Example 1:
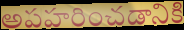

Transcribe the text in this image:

అపహరించడానికి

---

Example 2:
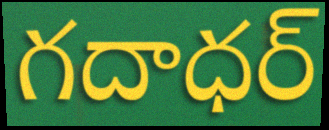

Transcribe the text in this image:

గదాధర్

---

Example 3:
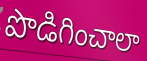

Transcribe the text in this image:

పొడిగించాలా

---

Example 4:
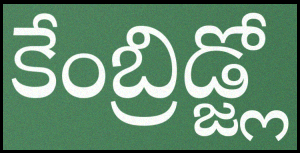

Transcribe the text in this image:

కేంబ్రిడ్జ్లో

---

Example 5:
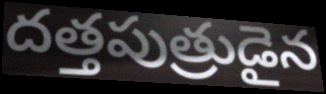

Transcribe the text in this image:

దత్తపుత్రుడైన